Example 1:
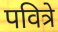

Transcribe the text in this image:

पवित्रे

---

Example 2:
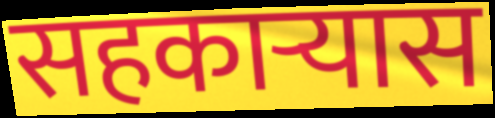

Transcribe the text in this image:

सहकार्‍यास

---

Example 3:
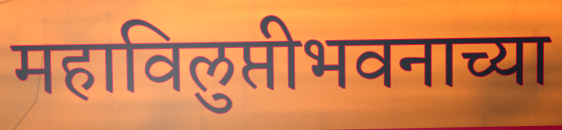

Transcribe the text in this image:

महाविलुप्तीभवनाच्या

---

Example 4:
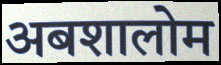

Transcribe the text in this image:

अबशालोम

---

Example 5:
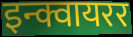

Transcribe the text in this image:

इन्क्वायरर